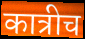
कात्रीच